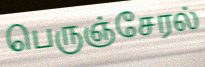
பெருஞ்சேரல்